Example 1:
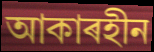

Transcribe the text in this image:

আকাৰহীন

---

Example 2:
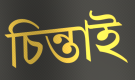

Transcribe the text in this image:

চিন্তাই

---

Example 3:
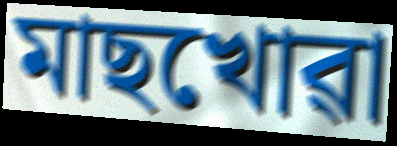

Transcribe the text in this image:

মাছখোৱা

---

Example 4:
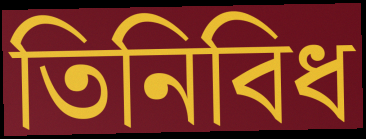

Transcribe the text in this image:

তিনিবিধ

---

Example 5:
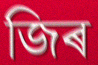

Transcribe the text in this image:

জিৰ